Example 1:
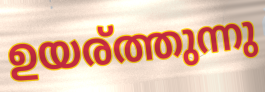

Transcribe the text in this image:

ഉയര്ത്തുന്നു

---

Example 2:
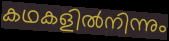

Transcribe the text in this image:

കഥകളിൽനിന്നും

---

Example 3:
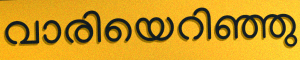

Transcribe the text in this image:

വാരിയെറിഞ്ഞു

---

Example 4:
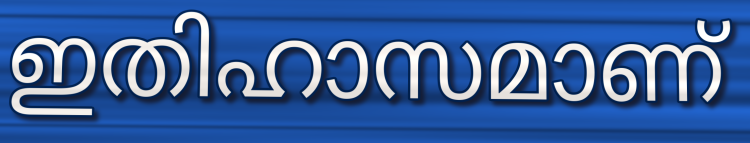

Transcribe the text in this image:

ഇതിഹാസമാണ്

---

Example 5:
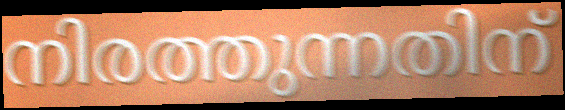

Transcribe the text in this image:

നിരത്തുന്നതിന്